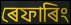
ৰেফাৰিং